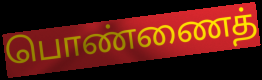
பொண்ணைத்